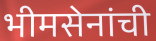
भीमसेनांची